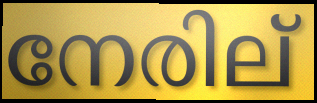
നേരില്